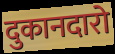
दुकानदारो